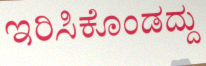
ಇರಿಸಿಕೊಂಡದ್ದು